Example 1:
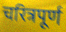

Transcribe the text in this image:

चरित्रपूर्ण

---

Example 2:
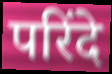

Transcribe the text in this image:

परिंदे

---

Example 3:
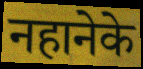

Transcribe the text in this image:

नहानेके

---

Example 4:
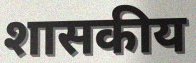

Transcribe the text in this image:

शासकीय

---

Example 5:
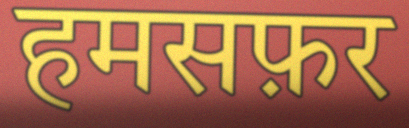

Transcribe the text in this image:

हमसफ़र